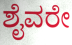
ಶೈವರೇ